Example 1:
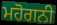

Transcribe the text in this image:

ਮਹੋਗਨੀ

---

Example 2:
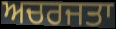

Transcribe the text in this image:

ਅਚਰਜਤਾ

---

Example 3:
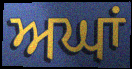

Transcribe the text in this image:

ਅਘਾਂ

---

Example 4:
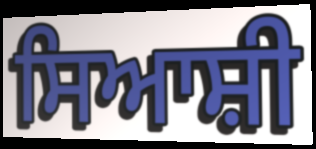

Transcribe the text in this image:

ਸਿਆਸ਼ੀ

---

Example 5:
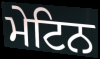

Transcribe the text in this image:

ਮੇਟਿਨ